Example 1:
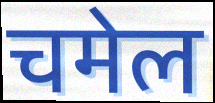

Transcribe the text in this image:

चमेल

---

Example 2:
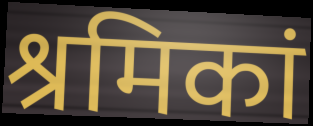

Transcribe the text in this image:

श्रमिकां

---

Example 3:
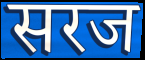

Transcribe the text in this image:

सरज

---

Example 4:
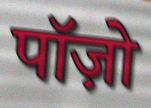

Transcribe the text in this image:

पॉज़ो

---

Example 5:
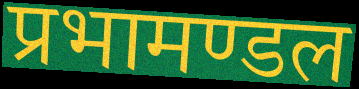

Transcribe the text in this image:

प्रभामण्डल